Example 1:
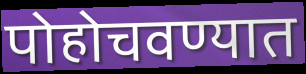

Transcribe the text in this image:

पोहोचवण्यात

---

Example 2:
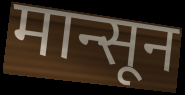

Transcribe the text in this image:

मान्सून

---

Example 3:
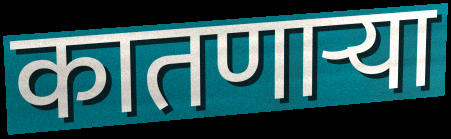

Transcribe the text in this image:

कातणाऱ्या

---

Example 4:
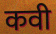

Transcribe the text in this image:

कवी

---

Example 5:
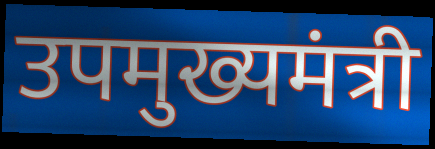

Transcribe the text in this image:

उपमुख्यमंत्री